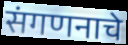
संगणनाचे